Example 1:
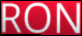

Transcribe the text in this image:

RON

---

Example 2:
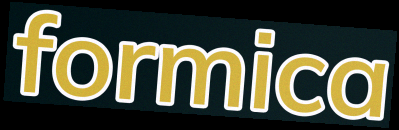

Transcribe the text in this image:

formica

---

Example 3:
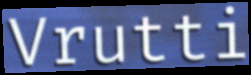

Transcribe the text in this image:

Vrutti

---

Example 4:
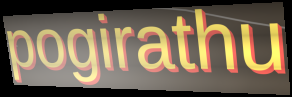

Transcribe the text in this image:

pogirathu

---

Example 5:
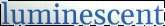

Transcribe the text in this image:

luminescent